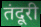
तंदूरी